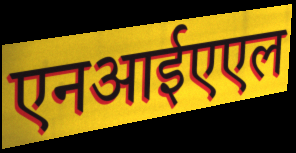
एनआईएएल